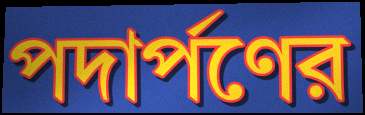
পদার্পণের